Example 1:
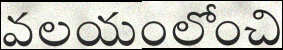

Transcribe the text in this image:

వలయంలోంచి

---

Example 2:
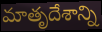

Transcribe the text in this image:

మాతృదేశాన్ని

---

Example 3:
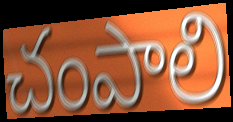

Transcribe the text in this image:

చంపాలి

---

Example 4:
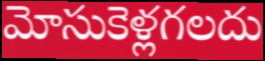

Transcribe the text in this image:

మోసుకెళ్లగలదు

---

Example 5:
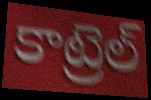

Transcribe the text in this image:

కాట్రెల్